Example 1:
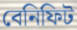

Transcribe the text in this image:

বেনিফিট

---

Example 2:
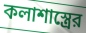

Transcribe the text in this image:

কলাশাস্ত্রের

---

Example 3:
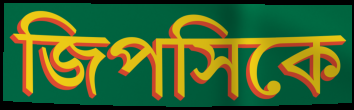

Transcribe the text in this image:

জিপসিকে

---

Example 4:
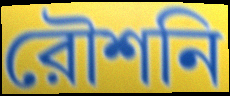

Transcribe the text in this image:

রৌশনি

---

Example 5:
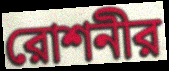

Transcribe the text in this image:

রোশনীর